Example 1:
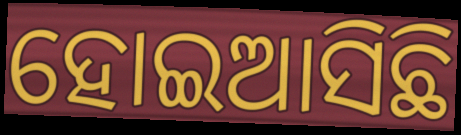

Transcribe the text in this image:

ହୋଇଆସିଛି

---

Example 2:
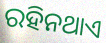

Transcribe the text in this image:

ରହିନଥାଏ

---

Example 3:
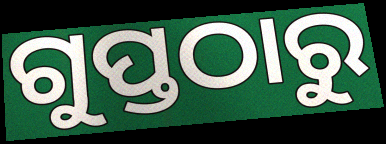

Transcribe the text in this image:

ଗୁପ୍ତଠାରୁ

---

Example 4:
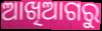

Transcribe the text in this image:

ଆଖିଆଗରୁ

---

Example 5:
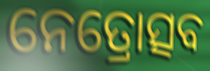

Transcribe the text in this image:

ନେତ୍ରୋତ୍ସବ